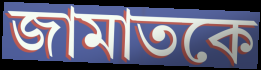
জামাতকে